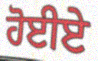
ਹੋਈਏ